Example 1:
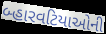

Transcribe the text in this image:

બ્હારવટિયાઓની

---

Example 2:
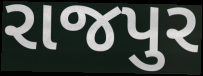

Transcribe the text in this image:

રાજપુર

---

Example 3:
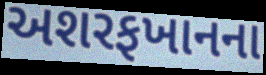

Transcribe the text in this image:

અશરફખાનના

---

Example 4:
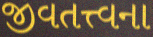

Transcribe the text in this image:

જીવતત્ત્વના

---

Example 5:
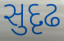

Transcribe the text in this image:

સુદૃઢ